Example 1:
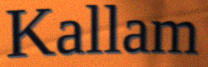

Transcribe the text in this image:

Kallam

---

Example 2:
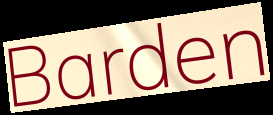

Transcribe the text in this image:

Barden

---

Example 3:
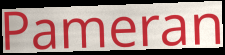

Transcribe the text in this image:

Pameran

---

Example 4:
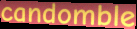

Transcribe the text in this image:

candomble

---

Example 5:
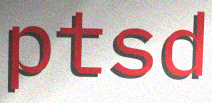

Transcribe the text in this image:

ptsd